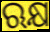
ଋକ୍ଷ